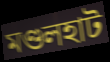
মণ্ডলহাট